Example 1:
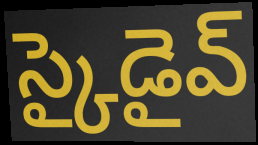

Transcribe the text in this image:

స్కైడైవ్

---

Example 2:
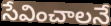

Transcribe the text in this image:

సేవించాలనే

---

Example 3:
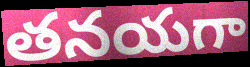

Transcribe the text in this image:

తనయగా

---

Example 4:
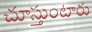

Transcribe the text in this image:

చూస్తుంటారు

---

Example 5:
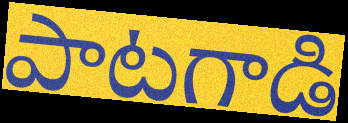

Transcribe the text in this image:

పాటగాడి